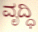
ವೃದ್ಧಿ